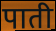
पाती